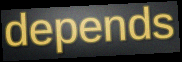
depends